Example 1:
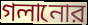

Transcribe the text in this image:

গলানোর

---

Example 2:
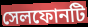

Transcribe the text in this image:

সেলফোনটি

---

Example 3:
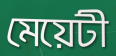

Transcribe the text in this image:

মেয়েটী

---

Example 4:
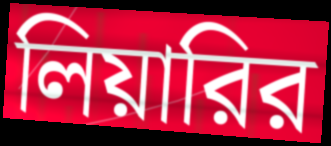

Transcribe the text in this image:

লিয়ারির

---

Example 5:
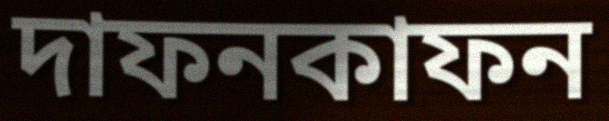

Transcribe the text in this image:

দাফনকাফন